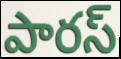
పారస్